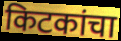
किटकांचा